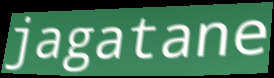
jagatane